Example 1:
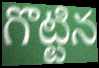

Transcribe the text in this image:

గొట్టిన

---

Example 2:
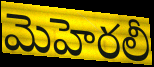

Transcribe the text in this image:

మెహెరలీ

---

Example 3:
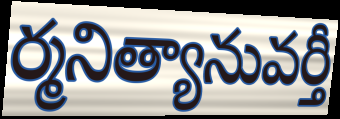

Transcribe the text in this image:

ర్మనిత్యానువర్తీ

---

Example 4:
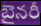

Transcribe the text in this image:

బైనరీ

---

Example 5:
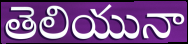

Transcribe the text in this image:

తెలియునా